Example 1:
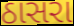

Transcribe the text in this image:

ઠાસરા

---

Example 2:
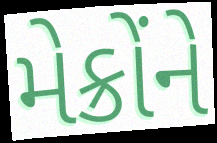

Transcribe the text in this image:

મેક્રોંને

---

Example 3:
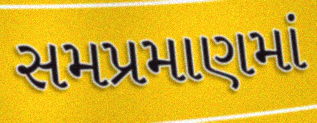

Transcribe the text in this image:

સમપ્રમાણમાં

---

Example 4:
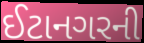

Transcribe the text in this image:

ઈટાનગરની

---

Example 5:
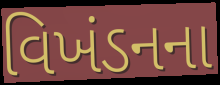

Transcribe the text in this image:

વિખંડનના